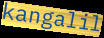
kangalil